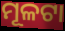
ମୂଳଟା